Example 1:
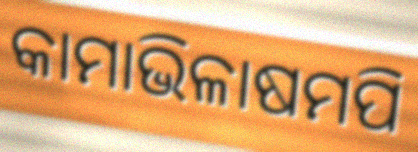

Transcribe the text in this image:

କାମାଭିଳାଷମପି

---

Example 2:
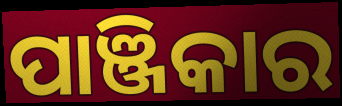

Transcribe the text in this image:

ପାଞ୍ଜିକାର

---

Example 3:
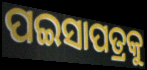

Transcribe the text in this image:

ପଇସାପତ୍ରକୁ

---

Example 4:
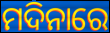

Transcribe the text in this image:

ମଦିନାରେ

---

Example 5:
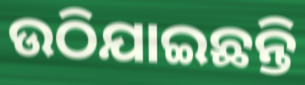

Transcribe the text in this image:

ଉଠିଯାଇଛନ୍ତି